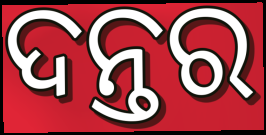
ଦନ୍ତର